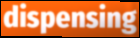
dispensing